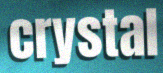
crystal